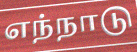
எந்நாடு